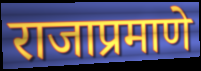
राजाप्रमाणे